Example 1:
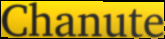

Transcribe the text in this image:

Chanute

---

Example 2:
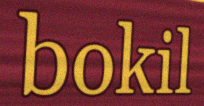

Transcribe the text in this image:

bokil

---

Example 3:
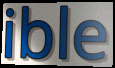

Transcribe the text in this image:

ible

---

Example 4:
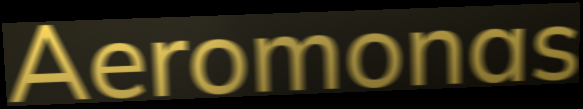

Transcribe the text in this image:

Aeromonas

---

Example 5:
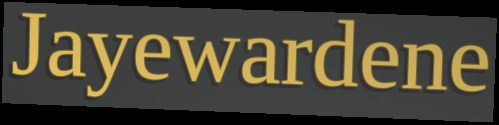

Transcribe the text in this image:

Jayewardene